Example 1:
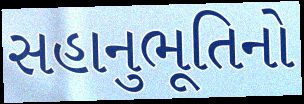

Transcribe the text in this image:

સહાનુભૂતિનો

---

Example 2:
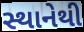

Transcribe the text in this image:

સ્થાનેથી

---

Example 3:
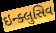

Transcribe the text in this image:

ઇન્ક્લુસિવ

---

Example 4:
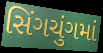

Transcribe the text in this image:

સિંગચુંગમાં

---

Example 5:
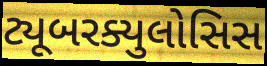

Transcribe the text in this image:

ટ્યૂબરક્યુલોસિસ